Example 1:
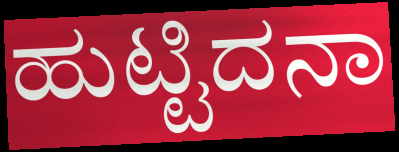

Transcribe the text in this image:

ಹುಟ್ಟಿದನಾ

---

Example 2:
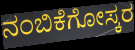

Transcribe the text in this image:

ನಂಬಿಕೆಗೋಸ್ಕರ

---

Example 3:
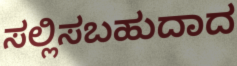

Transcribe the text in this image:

ಸಲ್ಲಿಸಬಹುದಾದ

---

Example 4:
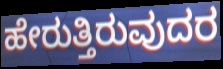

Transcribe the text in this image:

ಹೇರುತ್ತಿರುವುದರ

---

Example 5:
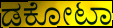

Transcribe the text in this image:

ಡಕೋಟಾ